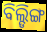
ବିଲ୍ଡିଙ୍ଗ